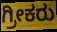
ಗ್ರೀಕರು